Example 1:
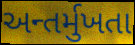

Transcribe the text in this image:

અન્તર્મુખતા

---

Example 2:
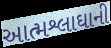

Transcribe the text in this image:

આત્મશ્લાઘાની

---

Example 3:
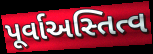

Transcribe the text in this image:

પૂર્વાઅસ્તિત્વ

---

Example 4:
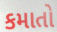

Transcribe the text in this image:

કમાતો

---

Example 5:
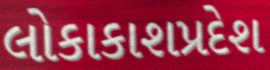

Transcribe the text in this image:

લોકાકાશપ્રદેશ